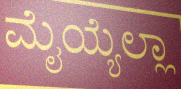
ಮೈಯ್ಯೆಲ್ಲಾ